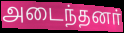
அடைந்தனர்